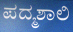
ಪದ್ಮಶಾಲಿ